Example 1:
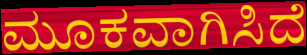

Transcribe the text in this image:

ಮೂಕವಾಗಿಸಿದೆ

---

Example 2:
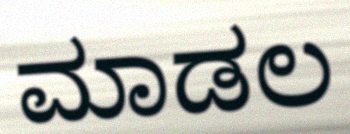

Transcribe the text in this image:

ಮಾಡಲ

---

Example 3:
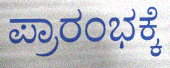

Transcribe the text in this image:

ಪ್ರಾರಂಭಕ್ಕೆ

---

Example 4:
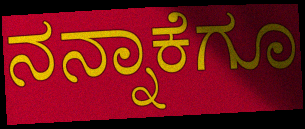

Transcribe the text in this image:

ನನ್ನಾಕೆಗೂ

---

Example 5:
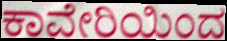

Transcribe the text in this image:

ಕಾವೇರಿಯಿಂದ